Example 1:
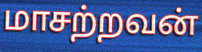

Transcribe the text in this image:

மாசற்றவன்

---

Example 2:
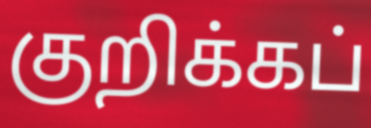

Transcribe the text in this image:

குறிக்கப்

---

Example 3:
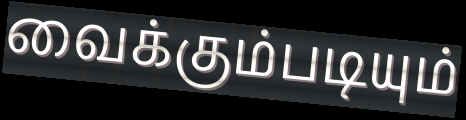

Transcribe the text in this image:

வைக்கும்படியும்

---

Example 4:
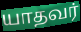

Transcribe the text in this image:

யாதவர்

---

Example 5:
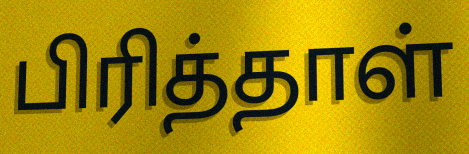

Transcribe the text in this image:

பிரித்தாள்